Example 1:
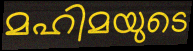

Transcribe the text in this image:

മഹിമയുടെ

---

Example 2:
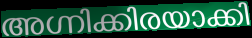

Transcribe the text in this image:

അഗ്നിക്കിരയാക്കി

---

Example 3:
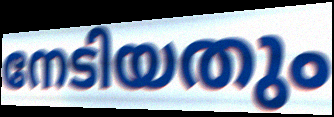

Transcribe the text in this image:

നേടിയതും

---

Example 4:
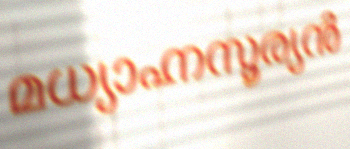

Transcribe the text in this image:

മധ്യാഹ്നസൂര്യൻ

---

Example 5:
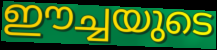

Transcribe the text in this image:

ഈച്ചയുടെ